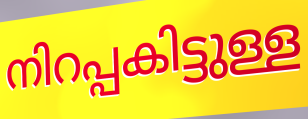
നിറപ്പകിട്ടുള്ള